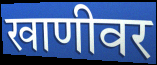
खाणीवर